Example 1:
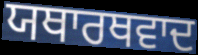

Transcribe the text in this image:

ਯਥਾਰਥਵਾਦ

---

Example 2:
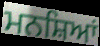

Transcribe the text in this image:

ਮਨਸ਼ਿਆਂ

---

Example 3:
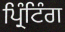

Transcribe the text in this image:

ਪ੍ਰਿੰਟਿੰਗ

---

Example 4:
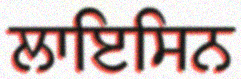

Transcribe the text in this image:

ਲਾਇਸਿਨ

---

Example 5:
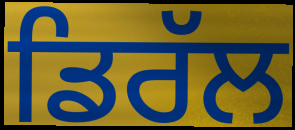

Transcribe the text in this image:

ਡਿਰੱਲ